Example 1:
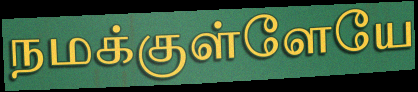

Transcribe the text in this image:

நமக்குள்ளேயே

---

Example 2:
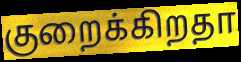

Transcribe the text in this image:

குறைக்கிறதா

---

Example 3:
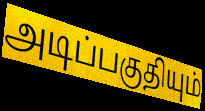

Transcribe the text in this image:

அடிப்பகுதியும்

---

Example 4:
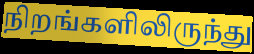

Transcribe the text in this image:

நிறங்களிலிருந்து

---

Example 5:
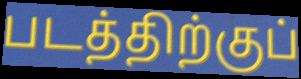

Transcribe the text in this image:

படத்திற்குப்